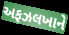
અફઝલખાને